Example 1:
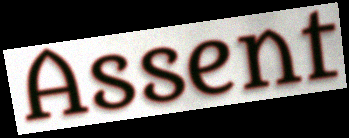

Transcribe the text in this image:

Assent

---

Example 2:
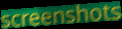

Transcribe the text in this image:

screenshots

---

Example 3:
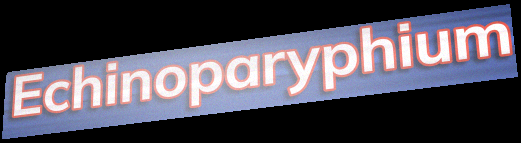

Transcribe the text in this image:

Echinoparyphium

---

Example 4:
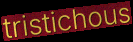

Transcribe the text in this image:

tristichous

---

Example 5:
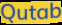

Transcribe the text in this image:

Qutab